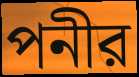
পনীর